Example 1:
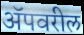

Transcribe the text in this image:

ॲपवरील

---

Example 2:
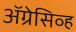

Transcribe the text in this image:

ॲग्रेसिव्ह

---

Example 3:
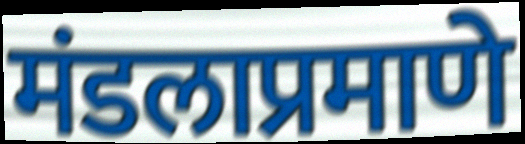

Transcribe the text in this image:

मंडलाप्रमाणे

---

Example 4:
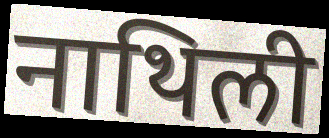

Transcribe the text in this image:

नाथिली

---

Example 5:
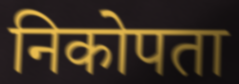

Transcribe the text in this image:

निकोपता